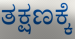
ತಕ್ಷಣಕ್ಕೆ